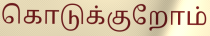
கொடுக்குறோம்